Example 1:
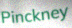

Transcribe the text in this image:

Pinckney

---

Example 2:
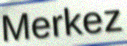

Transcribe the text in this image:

Merkez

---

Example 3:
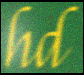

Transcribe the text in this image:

hd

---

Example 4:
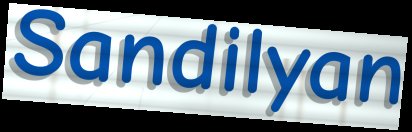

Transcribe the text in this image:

Sandilyan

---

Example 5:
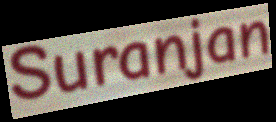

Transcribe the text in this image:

Suranjan